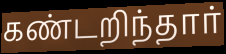
கண்டறிந்தார்